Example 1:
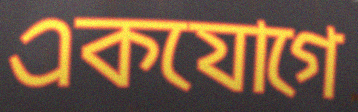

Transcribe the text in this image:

একযোগে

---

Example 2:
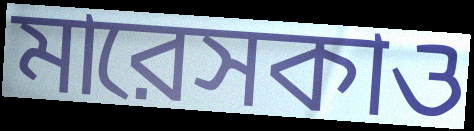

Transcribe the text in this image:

মারেসকাও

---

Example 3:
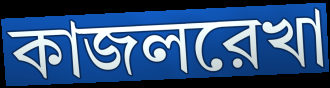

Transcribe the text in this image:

কাজলরেখা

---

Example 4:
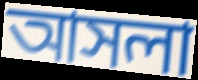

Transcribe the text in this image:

আসলা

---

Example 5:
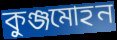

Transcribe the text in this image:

কুঞ্জমোহন